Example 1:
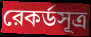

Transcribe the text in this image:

রেকর্ডসূত্র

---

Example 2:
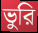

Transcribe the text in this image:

ভুরি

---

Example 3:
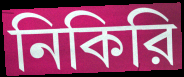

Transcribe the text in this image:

নিকিরি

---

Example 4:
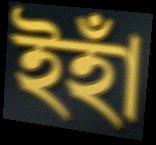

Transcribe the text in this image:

ইহাঁ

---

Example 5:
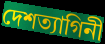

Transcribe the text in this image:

দেশত্যাগিনী